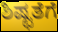
ಶಿಷ್ಟತೆಗೆ